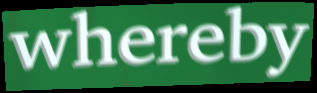
whereby